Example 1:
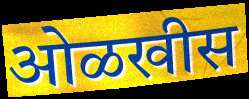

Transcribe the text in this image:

ओळखीस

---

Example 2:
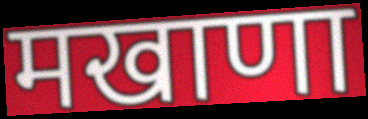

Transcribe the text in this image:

मखाणा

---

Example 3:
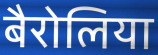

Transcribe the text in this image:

बैरोलिया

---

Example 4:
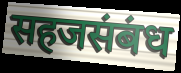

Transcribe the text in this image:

सहजसंबंध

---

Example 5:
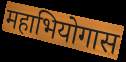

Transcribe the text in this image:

महाभियोगास